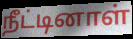
நீட்டினாள்